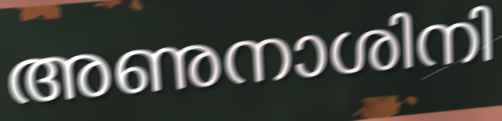
അണുനാശിനി